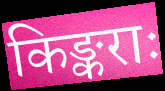
किङ्कराः